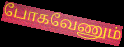
போகவேணும்